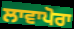
ਲਾਵਾਪੋਰਾ